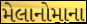
મેલાનોમાના